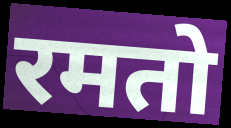
रमतो